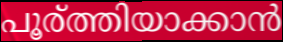
പൂര്ത്തിയാക്കാൻ